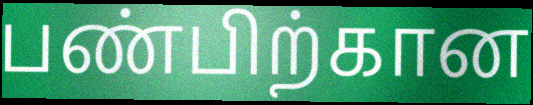
பண்பிற்கான